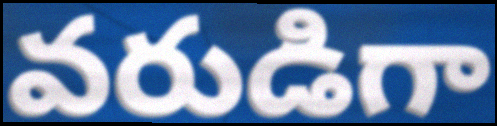
వరుడిగా